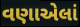
વણાએલાં